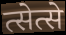
त्सेत्से